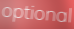
optional